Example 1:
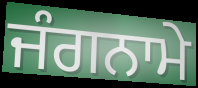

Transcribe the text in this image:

ਜੰਗਨਾਮੇ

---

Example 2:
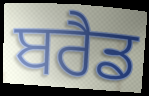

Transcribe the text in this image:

ਬਰੈਡ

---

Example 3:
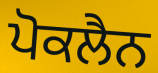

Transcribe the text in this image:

ਪੋਕਲੈਨ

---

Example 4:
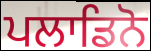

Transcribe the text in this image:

ਪਲਾਡਿਨੋ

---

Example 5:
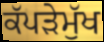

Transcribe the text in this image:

ਕੱਪੜੇਮੁੱਖ